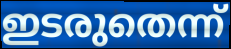
ഇടരുതെന്ന്